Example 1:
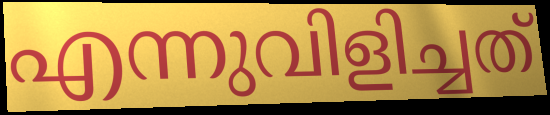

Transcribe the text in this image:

എന്നുവിളിച്ചത്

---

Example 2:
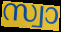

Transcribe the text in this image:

സ്വാ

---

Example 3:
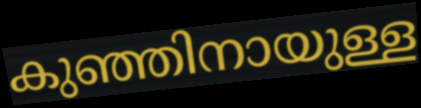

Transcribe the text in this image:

കുഞ്ഞിനായുള്ള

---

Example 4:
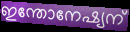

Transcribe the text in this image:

ഇന്തോനേഷ്യന്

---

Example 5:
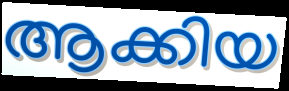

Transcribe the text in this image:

ആക്കിയ